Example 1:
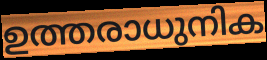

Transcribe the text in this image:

ഉത്തരാധുനിക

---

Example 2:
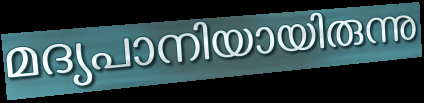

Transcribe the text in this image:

മദ്യപാനിയായിരുന്നു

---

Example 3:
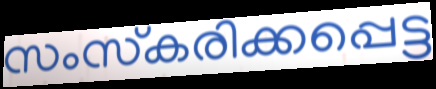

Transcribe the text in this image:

സംസ്‌കരിക്കപ്പെട്ട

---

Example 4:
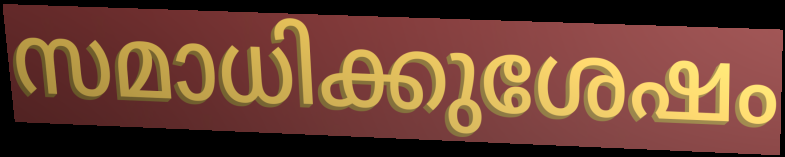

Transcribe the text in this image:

സമാധിക്കുശേഷം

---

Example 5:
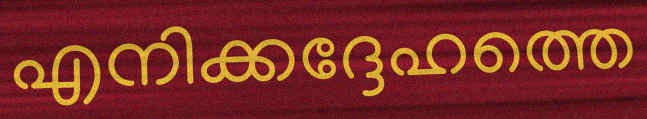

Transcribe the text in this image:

എനിക്കദ്ദേഹത്തെ